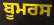
ਬੂਮਰਸ